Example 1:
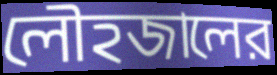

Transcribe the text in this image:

লৌহজালের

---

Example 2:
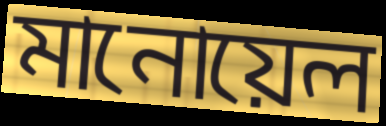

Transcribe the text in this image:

মানোয়েল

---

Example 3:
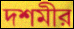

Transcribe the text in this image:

দশমীর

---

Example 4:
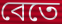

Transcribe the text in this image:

বেতে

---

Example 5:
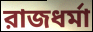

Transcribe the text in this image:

রাজধর্মা